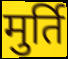
मुर्ति